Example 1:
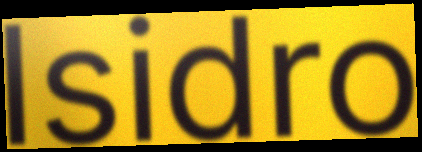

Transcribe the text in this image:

Isidro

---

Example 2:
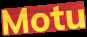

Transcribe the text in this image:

Motu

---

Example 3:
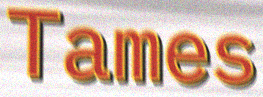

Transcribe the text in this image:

Tames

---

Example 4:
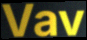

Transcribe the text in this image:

Vav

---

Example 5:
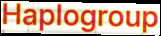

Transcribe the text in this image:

Haplogroup